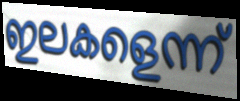
ഇലകളെന്ന്